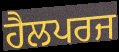
ਹੈਲਪਰਜ